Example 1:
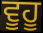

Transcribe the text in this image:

ਵੂਹੂ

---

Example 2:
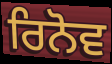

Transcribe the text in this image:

ਰਿਨੋਵ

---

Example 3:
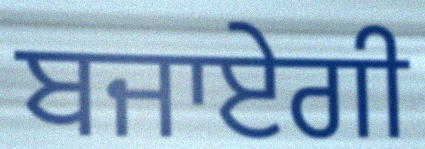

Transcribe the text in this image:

ਬਜਾਏਗੀ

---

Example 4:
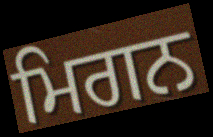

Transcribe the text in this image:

ਮਿਗਨ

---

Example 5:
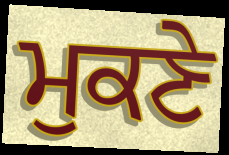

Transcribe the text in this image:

ਮੁਕਣੇ